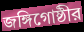
জঙ্গিগোষ্ঠীর